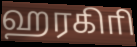
ஹரகிரி